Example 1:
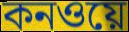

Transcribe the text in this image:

কনওয়ে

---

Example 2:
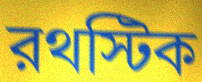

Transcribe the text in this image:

রথস্টিক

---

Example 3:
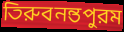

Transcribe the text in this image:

তিরুবনন্তপুরম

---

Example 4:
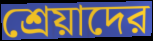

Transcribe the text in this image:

শ্রেয়াদের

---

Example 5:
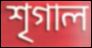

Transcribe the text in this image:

শৃগাল